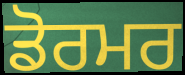
ਡੋਰਮਰ